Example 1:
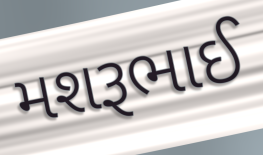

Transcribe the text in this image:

મશરૂભાઈ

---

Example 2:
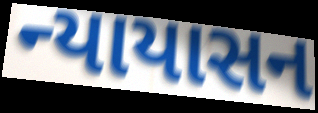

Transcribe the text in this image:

ન્યાયાસન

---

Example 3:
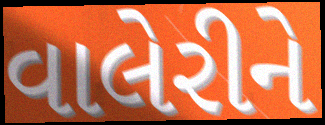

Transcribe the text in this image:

વાલેરીને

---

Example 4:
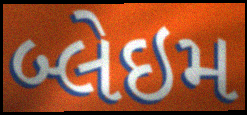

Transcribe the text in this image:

બ્લેઇમ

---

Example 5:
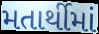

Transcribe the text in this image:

મતાર્થીમાં